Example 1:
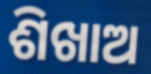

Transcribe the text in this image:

ଶିଖାଅ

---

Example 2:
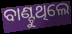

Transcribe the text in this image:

ବାଣ୍ଟୁଥିଲେ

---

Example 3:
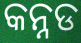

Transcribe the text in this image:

କନ୍ନଡ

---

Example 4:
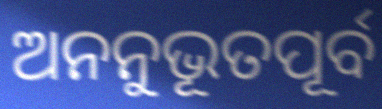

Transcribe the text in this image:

ଅନନୁଭୂତପୂର୍ବ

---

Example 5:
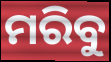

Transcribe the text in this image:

ମରିବୁ